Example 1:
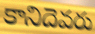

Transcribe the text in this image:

కానిదెవరు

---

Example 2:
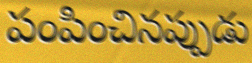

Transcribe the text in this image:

పంపించినప్పుడు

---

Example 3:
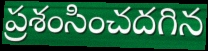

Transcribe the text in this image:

ప్రశంసించదగిన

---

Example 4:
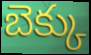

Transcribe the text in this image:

బెక్కు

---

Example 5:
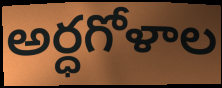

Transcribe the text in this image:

అర్ధగోళాల